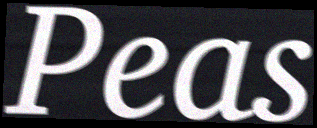
Peas